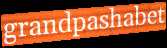
grandpashabet